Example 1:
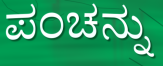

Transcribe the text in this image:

ಪಂಚನ್ನು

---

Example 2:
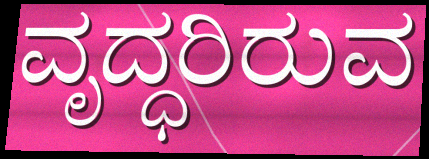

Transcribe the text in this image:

ವೃದ್ಧರಿರುವ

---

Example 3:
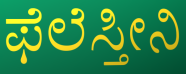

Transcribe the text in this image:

ಫೆಲೆಸ್ತೀನಿ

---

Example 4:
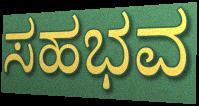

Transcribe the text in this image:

ಸಹಭವ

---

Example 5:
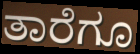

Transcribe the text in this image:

ತಾರೆಗೂ